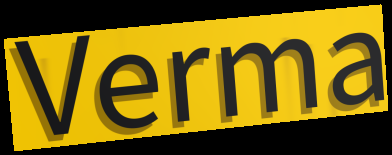
Verma